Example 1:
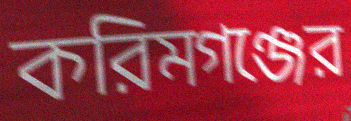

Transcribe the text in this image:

করিমগঞ্জের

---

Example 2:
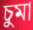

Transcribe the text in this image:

চুমা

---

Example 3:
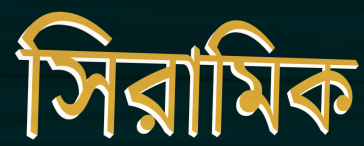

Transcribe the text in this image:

সিরামিক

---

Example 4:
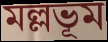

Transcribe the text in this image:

মল্লভূম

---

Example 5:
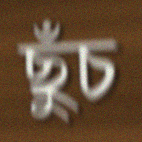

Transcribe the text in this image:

ছুঁচ